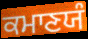
ਕਮਾਣਯੰ